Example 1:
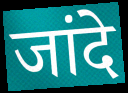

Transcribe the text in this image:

जांदे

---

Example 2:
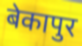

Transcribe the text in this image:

बेकापुर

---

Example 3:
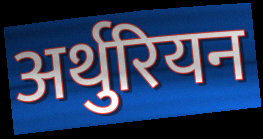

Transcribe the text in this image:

अर्थुरियन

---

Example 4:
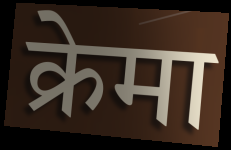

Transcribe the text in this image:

क्रेमा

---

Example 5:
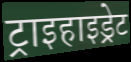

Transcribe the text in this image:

ट्राइहाइड्रेट